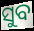
ସୁବ